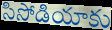
సిసోడియాకు